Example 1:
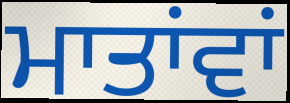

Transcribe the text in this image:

ਮਾਤਾਂਵਾਂ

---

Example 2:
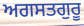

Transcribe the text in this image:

ਅਗਸਤਗੁਰੂ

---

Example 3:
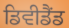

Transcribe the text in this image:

ਡਿਵੀਡੈਂਡ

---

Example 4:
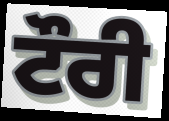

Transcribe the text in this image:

ਟੌਰੀ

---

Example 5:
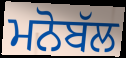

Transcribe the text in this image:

ਮਨੋਬੱਲ